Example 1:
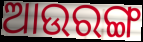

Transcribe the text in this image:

ଆଉରଙ୍ଗ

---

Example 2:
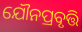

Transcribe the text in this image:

ଯୌନପ୍ରବୃତ୍ତି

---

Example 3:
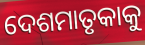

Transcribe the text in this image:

ଦେଶମାତୃକାକୁ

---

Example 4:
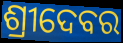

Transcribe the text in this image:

ଶ୍ରୀଦେବର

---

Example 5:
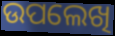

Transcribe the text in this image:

ଉପଲେଖି